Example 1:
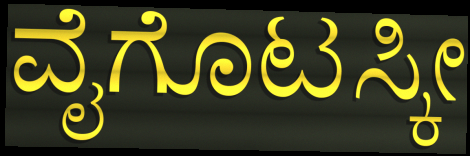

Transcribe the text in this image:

ವೈಗೊಟಸ್ಕೀ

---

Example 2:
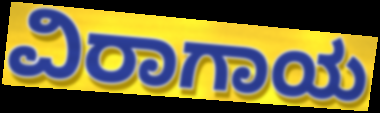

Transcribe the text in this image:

ವಿರಾಗಾಯ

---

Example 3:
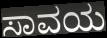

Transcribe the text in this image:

ಸಾವಯ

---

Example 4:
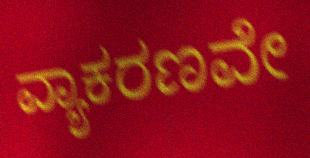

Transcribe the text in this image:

ವ್ಯಾಕರಣವೇ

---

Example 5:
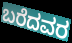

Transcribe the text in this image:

ಬರೆದವರ